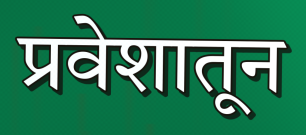
प्रवेशातून